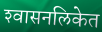
श्वासनलिकेत